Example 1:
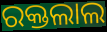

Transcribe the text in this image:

ରକ୍ତଲାଲ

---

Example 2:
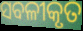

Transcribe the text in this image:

ସବଳୀକୃତ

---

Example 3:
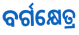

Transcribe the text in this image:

ବର୍ଗକ୍ଷେତ୍ର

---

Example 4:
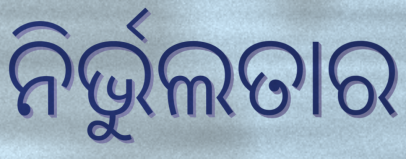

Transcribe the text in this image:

ନିର୍ଭୁଲତାର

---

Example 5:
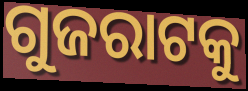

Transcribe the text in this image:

ଗୁଜରାଟକୁ